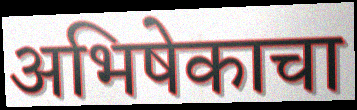
अभिषेकाचा